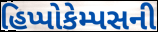
હિપ્પોકેમ્પસની